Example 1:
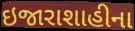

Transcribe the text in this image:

ઇજારાશાહીના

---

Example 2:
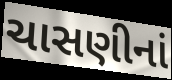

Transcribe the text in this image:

ચાસણીનાં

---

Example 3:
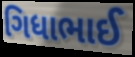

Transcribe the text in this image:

ગિધાભાઈ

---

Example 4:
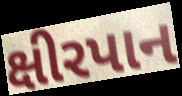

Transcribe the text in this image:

ક્ષીરપાન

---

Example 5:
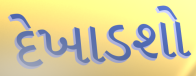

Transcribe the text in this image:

દેખાડશો